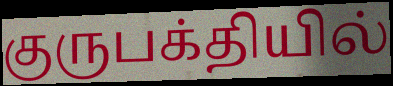
குருபக்தியில்